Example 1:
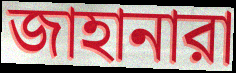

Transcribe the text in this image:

জাহানারা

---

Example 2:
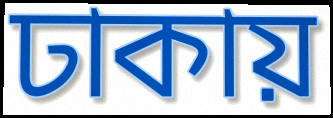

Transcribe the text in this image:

ঢাকায়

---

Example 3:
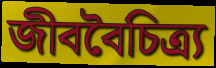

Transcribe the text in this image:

জীববৈচিত্র্য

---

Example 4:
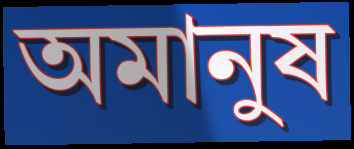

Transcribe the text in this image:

অমানুষ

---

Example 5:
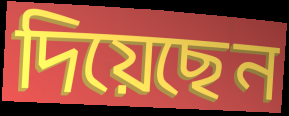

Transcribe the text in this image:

দিয়েছেন